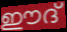
ഈദ്